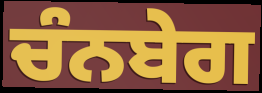
ਚੰਨਬੇਗ